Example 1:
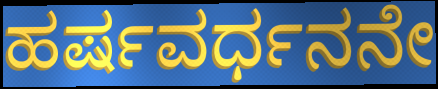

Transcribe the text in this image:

ಹರ್ಷವರ್ಧನನೇ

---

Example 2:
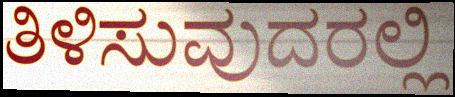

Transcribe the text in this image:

ತಿಳಿಸುವುದರಲ್ಲಿ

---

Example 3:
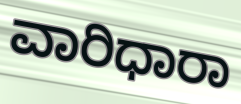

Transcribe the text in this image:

ವಾರಿಧಾರಾ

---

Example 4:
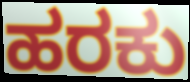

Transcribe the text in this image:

ಹರಕು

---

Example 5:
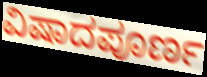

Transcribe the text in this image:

ವಿಷಾದಪೂರ್ಣ